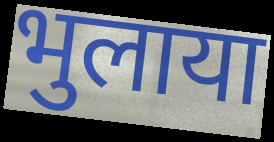
भुलाया